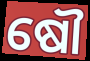
ଷୌ